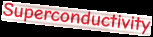
Superconductivity